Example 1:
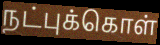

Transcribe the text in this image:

நட்புக்கொள்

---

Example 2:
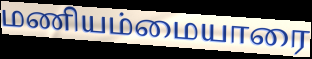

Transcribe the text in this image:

மணியம்மையாரை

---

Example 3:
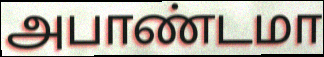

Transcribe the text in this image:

அபாண்டமா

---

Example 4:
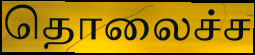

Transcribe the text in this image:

தொலைச்ச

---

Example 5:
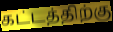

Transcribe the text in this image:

கட்டத்திற்கு